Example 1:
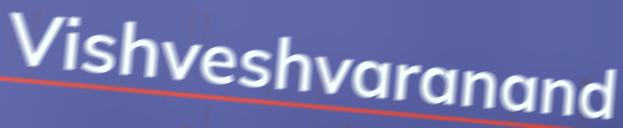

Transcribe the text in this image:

Vishveshvaranand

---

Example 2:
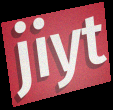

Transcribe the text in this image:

jiyt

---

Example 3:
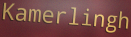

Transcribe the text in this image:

Kamerlingh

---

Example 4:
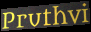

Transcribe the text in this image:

Pruthvi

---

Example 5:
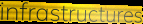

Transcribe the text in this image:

infrastructures